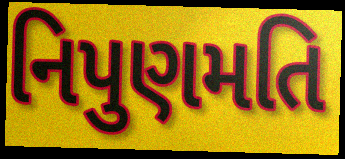
નિપુણમતિ